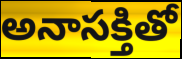
అనాసక్తితో